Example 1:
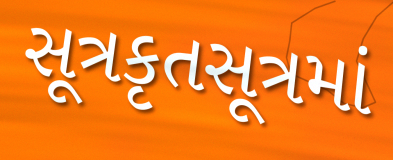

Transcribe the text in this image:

સૂત્રકૃતસૂત્રમાં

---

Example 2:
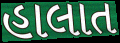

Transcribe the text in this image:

હાલાત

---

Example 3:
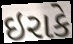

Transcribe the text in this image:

ઇરાકે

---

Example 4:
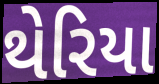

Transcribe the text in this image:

થેરિયા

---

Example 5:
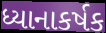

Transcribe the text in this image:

ધ્યાનાકર્ષક